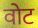
वोट